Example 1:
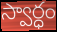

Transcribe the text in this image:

స్వార్ధం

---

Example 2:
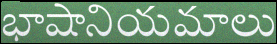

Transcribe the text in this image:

భాషానియమాలు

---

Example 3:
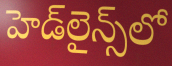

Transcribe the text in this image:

హెడ్‌లైన్స్‌లో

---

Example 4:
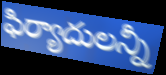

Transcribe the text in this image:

ఫిర్యాదులన్నీ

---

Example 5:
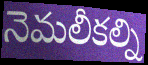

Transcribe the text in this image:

నెమలీకల్ని